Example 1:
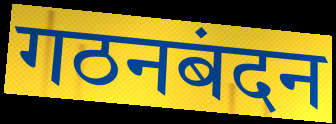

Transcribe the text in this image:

गठनबंदन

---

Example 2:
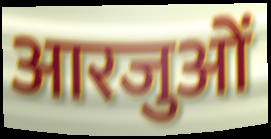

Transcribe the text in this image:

आरजुओं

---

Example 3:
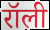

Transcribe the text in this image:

रॉली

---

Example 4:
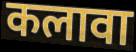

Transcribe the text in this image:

कलावा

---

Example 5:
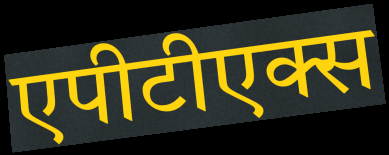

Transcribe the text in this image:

एपीटीएक्स